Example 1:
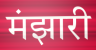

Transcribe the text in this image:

मंझारी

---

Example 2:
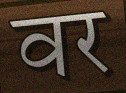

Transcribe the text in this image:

वर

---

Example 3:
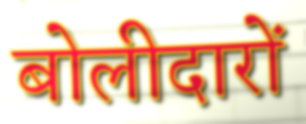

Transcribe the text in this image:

बोलीदारों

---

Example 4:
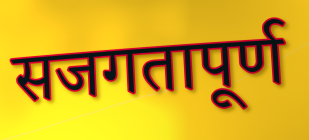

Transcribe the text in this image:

सजगतापूर्ण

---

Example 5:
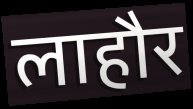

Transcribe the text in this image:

लाहौर